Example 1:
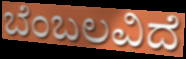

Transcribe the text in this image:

ಬೆಂಬಲವಿದೆ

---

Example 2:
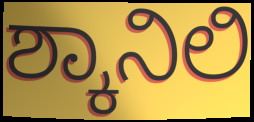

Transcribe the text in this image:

ಶ್ಕಾನಿಲಿ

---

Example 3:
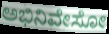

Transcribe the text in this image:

ಅಭಿನಿವೇಸೋ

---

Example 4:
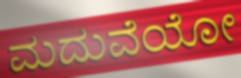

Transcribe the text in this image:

ಮದುವೆಯೋ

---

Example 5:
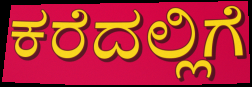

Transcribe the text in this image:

ಕರೆದಲ್ಲಿಗೆ